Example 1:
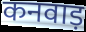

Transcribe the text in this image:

कनवाड़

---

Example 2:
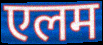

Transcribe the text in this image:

एलम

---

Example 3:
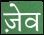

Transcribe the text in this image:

ज़ेव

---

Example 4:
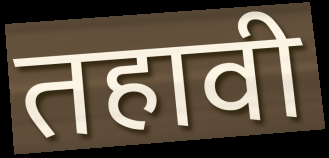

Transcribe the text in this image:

तहावी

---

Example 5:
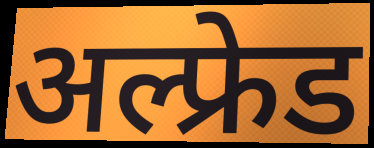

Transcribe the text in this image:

अल्फ्रेड